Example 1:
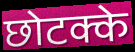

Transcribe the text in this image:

छोटक्के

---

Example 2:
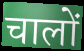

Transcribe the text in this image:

चालों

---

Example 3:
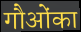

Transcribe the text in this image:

गौओंका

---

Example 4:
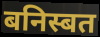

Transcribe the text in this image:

बनिस्बत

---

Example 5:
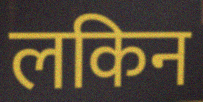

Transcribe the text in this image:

लकिन